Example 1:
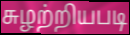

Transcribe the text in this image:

சுழற்றியபடி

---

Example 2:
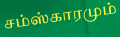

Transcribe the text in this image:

சம்ஸ்காரமும்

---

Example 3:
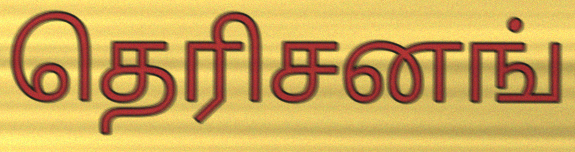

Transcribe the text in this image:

தெரிசனங்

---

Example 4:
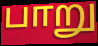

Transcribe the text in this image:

பாறு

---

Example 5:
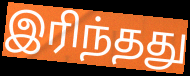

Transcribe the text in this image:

இரிந்தது